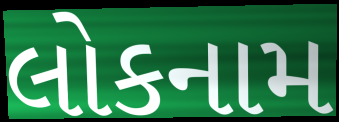
લોકનામ